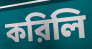
করিলি